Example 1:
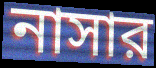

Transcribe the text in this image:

নাসার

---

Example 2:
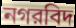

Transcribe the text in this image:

নগরবিদ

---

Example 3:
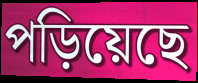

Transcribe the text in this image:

পড়িয়েছে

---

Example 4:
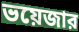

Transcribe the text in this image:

ভয়েজার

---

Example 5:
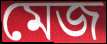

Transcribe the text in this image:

মেজ